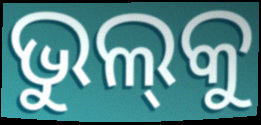
ଭୁଲ୍‍କୁ